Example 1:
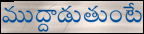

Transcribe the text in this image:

ముద్దాడుతుంటే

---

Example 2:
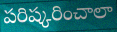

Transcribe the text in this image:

పరిష్కరించాలా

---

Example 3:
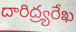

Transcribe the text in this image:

దారిద్ర్యరేఖ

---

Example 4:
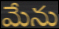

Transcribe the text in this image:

మేను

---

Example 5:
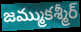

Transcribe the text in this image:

జమ్ముకశ్మీర్